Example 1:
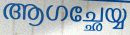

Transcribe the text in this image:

ആഗച്ഛേയ്യ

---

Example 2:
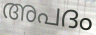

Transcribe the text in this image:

അപദം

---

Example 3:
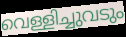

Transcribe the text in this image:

വെള്ളിച്ചുവടും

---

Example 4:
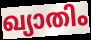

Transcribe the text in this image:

ഖ്യാതിം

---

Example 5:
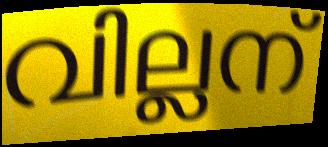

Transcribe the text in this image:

വില്ലന്